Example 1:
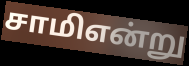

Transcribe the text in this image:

சாமிஎன்று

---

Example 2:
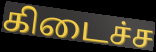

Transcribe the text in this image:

கிடைச்ச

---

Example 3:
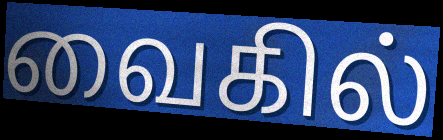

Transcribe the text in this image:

வைகில்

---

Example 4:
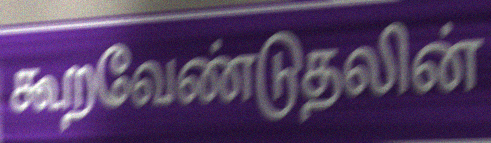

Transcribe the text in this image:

கூறவேண்டுதலின்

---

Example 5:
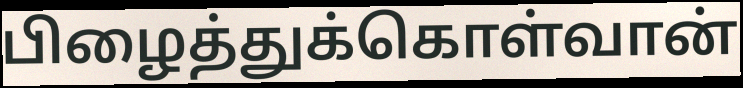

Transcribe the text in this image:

பிழைத்துக்கொள்வான்